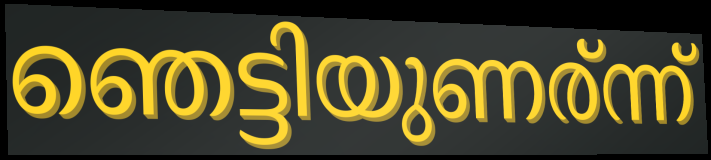
ഞെട്ടിയുണര്ന്ന്